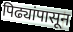
पिढ्यांपासून